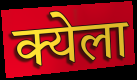
क्येला